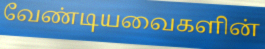
வேண்டியவைகளின்